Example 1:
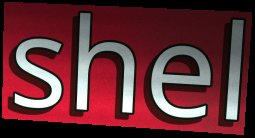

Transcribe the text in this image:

shel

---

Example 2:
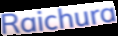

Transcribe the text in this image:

Raichura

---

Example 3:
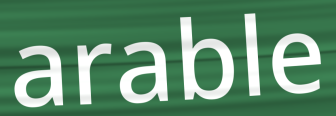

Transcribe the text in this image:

arable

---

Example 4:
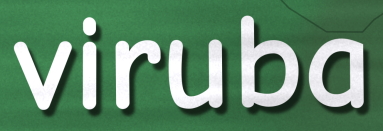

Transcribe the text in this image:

viruba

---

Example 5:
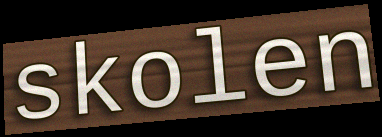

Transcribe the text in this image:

skolen